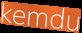
kemdu